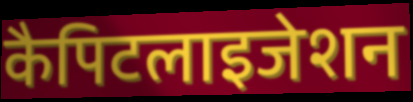
कैपिटलाइजेशन